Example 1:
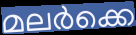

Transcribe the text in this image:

മലർക്കെ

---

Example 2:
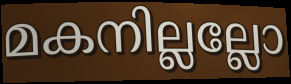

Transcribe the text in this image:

മകനില്ലല്ലോ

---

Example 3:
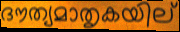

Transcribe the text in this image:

ദൗത്യമാതൃകയില്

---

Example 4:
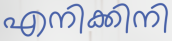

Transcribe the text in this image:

എനിക്കിനി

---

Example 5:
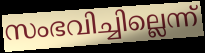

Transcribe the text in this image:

സംഭവിച്ചില്ലെന്ന്